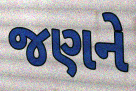
જણને